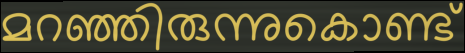
മറഞ്ഞിരുന്നുകൊണ്ട്